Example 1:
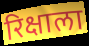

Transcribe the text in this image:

रिक्षाला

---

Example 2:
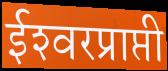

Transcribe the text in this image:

ईश्वरप्राप्ती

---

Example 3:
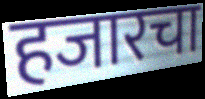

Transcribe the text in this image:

हजारचा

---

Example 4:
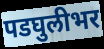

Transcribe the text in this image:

पडघुलीभर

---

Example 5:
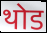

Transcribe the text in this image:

थोड